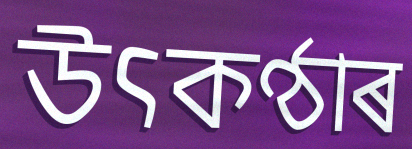
উৎকণ্ঠাৰ